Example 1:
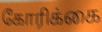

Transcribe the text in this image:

கோரிக்கை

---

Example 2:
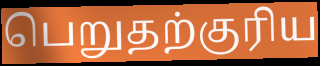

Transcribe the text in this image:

பெறுதற்குரிய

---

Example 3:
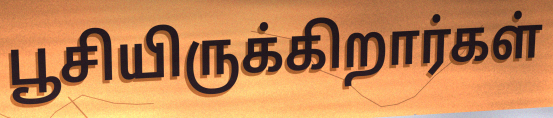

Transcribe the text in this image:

பூசியிருக்கிறார்கள்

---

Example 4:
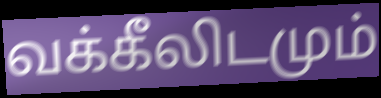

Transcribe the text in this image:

வக்கீலிடமும்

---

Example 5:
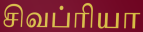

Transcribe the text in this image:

சிவப்ரியா